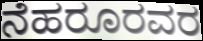
ನೆಹರೂರವರ